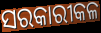
ସରକାରୀକଳ